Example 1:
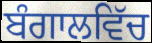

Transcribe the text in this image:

ਬੰਗਾਲਵਿੱਚ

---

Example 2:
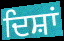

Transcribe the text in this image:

ਦਿਸ਼ਾਂ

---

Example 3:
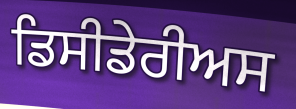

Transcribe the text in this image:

ਡਿਸੀਡੇਰੀਅਸ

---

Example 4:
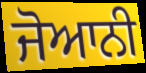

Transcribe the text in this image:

ਜੋਆਨੀ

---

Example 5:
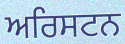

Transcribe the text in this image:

ਅਰਿਸਟਨ